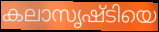
കലാസൃഷ്ടിയെ